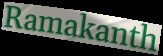
Ramakanth